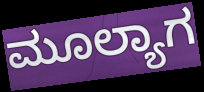
ಮೂಲ್ಯಾಗ